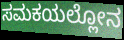
ಸಮಕಯಲ್ಲೋನ